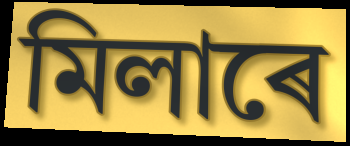
মিলাৰে